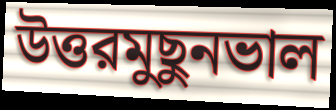
উত্তরমুছুনভাল